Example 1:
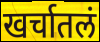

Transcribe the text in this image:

खर्चातलं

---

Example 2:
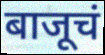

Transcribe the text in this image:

बाजूचं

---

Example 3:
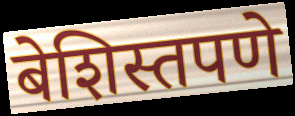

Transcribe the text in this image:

बेशिस्तपणे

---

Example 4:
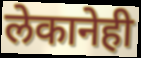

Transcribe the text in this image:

लेकानेही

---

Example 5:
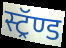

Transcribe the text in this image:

स्ट्रॅण्ड